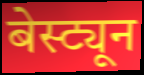
बेस्ट्यून